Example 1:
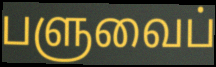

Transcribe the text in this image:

பளுவைப்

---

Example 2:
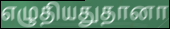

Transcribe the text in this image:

எழுதியதுதானா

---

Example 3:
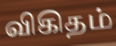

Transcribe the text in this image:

விகிதம்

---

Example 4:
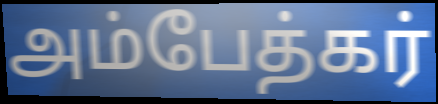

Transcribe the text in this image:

அம்பேத்கர்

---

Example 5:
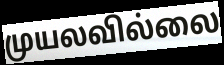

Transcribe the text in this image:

முயலவில்லை